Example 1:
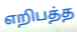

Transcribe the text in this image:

எறிபத்த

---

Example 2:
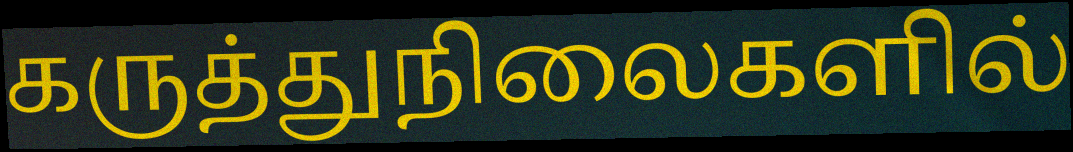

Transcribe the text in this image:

கருத்துநிலைகளில்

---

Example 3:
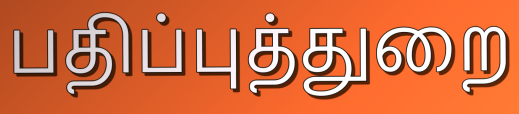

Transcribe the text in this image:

பதிப்புத்துறை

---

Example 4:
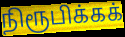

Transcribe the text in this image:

நிரூபிக்கக்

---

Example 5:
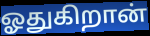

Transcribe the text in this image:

ஓதுகிறான்